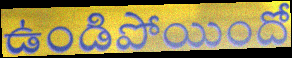
ఉండిపోయిందో